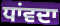
ਧਾਂਵਦਾ